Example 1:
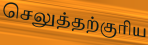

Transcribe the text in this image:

செலுத்தற்குரிய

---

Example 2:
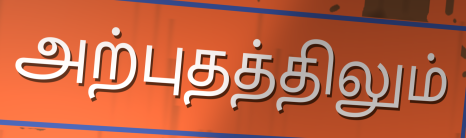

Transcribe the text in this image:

அற்புதத்திலும்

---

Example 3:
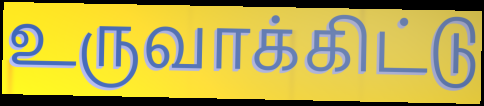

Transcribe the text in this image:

உருவாக்கிட்டு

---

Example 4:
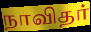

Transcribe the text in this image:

நாவிதர்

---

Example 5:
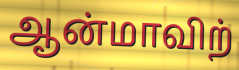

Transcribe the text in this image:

ஆன்மாவிற்